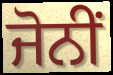
ਜੋਨੀਂ